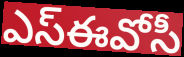
ఎస్ఈవోసీ